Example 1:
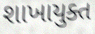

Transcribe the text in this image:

શાખાયુક્ત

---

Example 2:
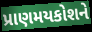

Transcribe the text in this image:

પ્રાણમયકોશને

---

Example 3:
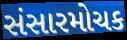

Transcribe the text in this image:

સંસારમોચક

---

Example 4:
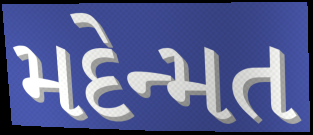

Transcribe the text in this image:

મદેન્મત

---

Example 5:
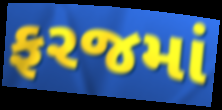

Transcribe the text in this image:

ફરજમાં